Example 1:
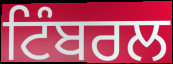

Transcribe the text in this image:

ਟਿੰਬਰਲ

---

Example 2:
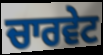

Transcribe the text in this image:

ਚਾਰਵੇਟ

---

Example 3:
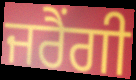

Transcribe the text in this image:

ਜਰੈਂਗੀ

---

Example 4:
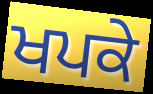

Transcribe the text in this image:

ਖਪਕੇ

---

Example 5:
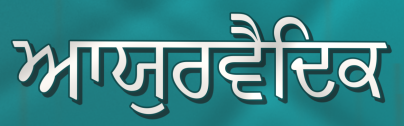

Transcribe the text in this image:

ਆਯੁਰਵੈਦਿਕ